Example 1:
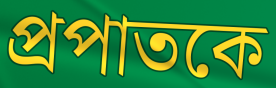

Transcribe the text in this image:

প্রপাতকে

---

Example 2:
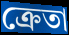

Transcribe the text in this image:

ক্রেতা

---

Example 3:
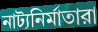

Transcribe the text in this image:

নাট্যনির্মাতারা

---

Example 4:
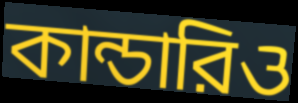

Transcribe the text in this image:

কান্ডারিও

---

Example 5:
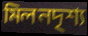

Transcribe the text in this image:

মিলনদৃশ্য